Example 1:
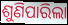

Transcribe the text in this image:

ଶୁଣିପାରିଲା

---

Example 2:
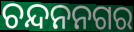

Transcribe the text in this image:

ଚନ୍ଦନନଗର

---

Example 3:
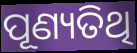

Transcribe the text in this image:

ପୂଣ୍ୟତିଥି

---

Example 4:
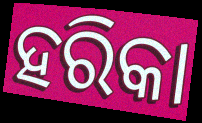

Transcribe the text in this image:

ହରିକା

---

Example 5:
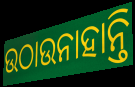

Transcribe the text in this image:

ଉଠାଉନାହାନ୍ତି